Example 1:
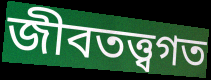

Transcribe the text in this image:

জীবতত্ত্বগত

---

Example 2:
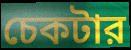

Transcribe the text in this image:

চেকটার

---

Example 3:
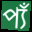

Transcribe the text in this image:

প্যঁ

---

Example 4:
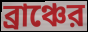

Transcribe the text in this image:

ব্রাঞ্চের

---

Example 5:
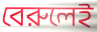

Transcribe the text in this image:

বেরুলেই